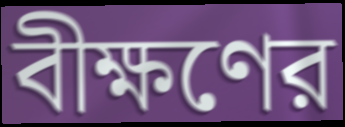
বীক্ষণের